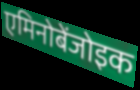
एमिनोबेंजोइक